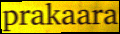
prakaara